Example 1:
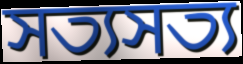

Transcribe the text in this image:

সত্যসত্য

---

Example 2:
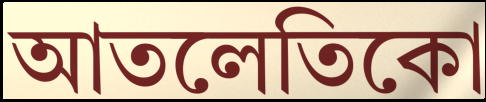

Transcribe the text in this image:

আতলেতিকো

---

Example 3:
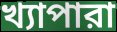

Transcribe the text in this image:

খ্যাপারা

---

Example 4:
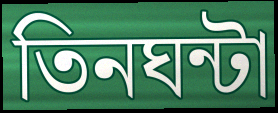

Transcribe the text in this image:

তিনঘন্টা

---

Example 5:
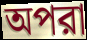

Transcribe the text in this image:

অপরা